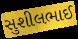
સુશીલભાઈ